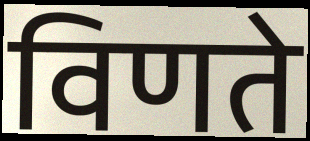
विणते